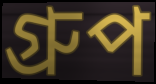
গ্রুপ